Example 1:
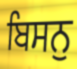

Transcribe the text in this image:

ਬਿਸਨੁ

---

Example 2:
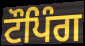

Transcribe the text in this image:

ਟੌਪਿੰਗ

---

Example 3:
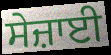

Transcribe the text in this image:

ਸੇਜ਼ਾਈ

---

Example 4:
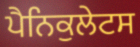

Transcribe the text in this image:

ਪੈਨਿਕੁਲੇਟਸ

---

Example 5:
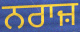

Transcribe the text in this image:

ਨਰਾਜ਼